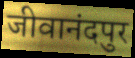
जीवानंदपुर